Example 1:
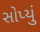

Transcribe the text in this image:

સોપ્યું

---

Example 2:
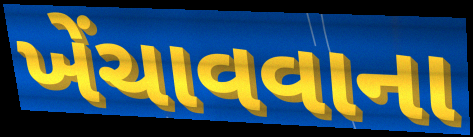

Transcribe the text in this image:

ખેંચાવવાના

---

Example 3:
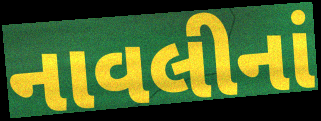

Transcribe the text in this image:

નાવલીનાં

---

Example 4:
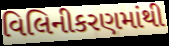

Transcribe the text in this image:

વિલિનીકરણમાંથી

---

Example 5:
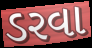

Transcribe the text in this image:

ડરવા